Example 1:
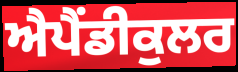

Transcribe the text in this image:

ਐਪੈਂਡੀਕੁਲਰ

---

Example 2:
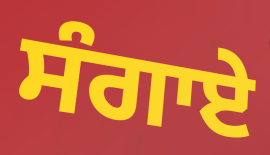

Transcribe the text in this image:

ਸੰਗਾਏ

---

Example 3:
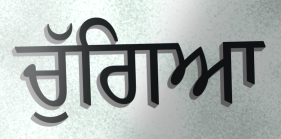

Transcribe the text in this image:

ਚੁੱਗਿਆ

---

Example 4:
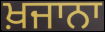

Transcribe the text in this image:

ਖ਼ਜਾਨਾ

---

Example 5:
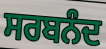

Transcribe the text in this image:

ਸਰਬਨੰਦ